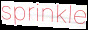
sprinkle